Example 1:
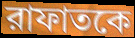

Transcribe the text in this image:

রাফাতকে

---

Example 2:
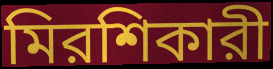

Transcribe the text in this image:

মিরশিকারী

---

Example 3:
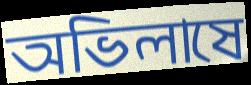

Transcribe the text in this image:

অভিলাষে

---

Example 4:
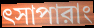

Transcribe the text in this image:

ৎসাপারাং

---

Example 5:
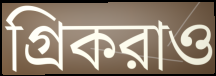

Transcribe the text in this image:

গ্রিকরাও